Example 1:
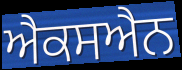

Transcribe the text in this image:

ਐਕਸਐਨ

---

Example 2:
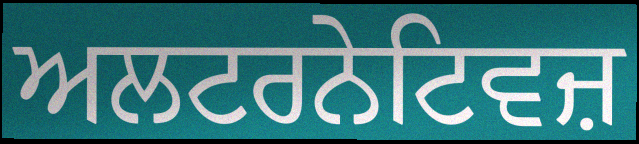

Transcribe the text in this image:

ਅਲਟਰਨੇਟਿਵਜ਼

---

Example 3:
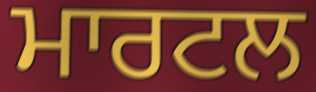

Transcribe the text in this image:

ਮਾਰਟਲ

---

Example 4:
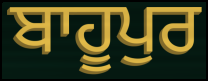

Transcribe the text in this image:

ਬਾਹੂਪੁਰ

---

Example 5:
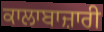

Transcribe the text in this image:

ਕਾਲਾਬਾਜ਼ਾਰੀ